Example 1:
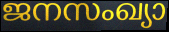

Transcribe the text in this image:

ജനസംഖ്യാ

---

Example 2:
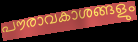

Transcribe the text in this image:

പൗരാവകാശങ്ങളും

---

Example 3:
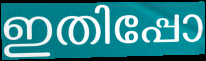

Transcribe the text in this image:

ഇതിപ്പോ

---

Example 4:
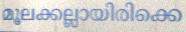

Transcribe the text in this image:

മൂലക്കല്ലായിരിക്കെ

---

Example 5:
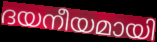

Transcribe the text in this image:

ദയനീയമായി